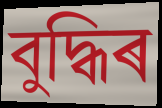
বুদ্ধিৰ